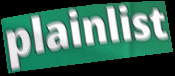
plainlist